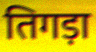
तिगड़ा